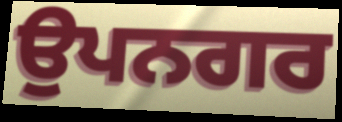
ਉਪਨਗਰ